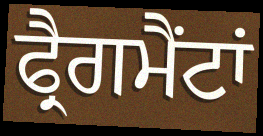
ਫ੍ਰੈਗਮੈਂਟਾਂ